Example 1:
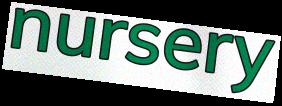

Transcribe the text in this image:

nursery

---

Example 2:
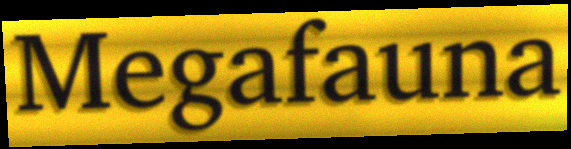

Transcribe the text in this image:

Megafauna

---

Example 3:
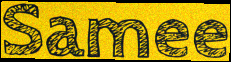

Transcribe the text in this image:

Samee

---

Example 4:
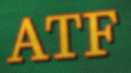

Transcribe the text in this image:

ATF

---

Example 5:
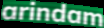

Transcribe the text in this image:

arindam